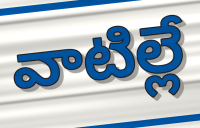
వాటిల్లే